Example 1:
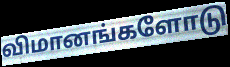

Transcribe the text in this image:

விமானங்களோடு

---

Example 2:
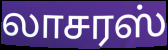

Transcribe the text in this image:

லாசரஸ்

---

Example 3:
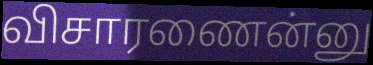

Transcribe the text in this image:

விசாரணைன்னு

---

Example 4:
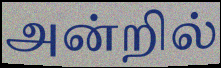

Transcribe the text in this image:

அன்றில்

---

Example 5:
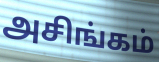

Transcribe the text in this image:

அசிங்கம்